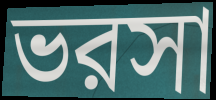
ভরসা